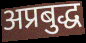
अप्रबुद्ध